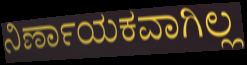
ನಿರ್ಣಾಯಕವಾಗಿಲ್ಲ